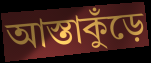
আস্তাকুঁড়ে